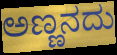
ಅಣ್ಣನದು